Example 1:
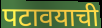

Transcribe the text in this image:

पटावयाची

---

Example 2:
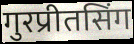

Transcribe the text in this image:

गुरप्रीतसिंग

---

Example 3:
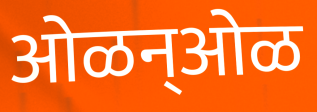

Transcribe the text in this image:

ओळन्ओळ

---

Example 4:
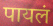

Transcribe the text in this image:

पायलं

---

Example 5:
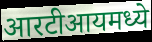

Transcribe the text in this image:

आरटीआयमध्ये